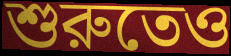
শুরুতেও